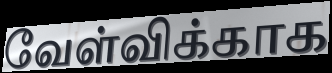
வேள்விக்காக